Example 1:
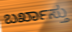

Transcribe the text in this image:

ಬರ್ಖಾಸ್ತು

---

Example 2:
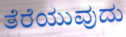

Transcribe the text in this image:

ತೆರೆಯುವುದು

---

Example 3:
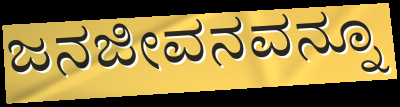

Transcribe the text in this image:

ಜನಜೀವನವನ್ನೂ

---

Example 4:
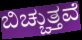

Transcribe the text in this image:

ಬಿಚ್ಚುತ್ತವೆ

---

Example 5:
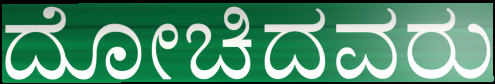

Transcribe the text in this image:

ದೋಚಿದವರು